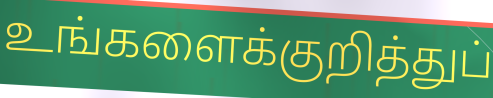
உங்களைக்குறித்துப்